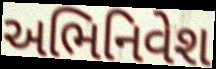
અભિનિવેશ